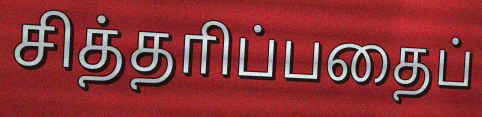
சித்தரிப்பதைப்